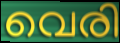
വെരി